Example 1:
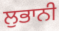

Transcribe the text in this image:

ਲੁਭਾਨੀ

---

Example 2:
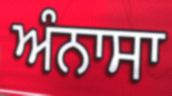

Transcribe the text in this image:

ਅੰਨਾਸਾ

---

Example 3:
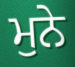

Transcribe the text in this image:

ਮੁਨੇ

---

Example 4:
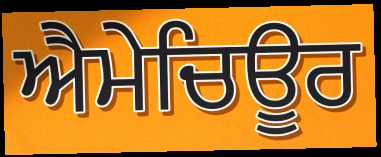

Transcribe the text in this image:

ਐਮੇਚਿਊਰ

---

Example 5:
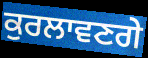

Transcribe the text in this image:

ਕੁਰਲਾਵਣਗੇ